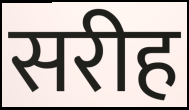
सरीह